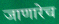
जाणारेच